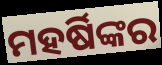
ମହର୍ଷିଙ୍କର